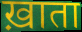
ख़ाता